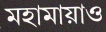
মহামায়াও